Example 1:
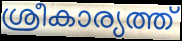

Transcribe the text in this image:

ശ്രീകാര്യത്ത്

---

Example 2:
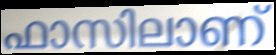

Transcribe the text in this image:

ഫാസിലാണ്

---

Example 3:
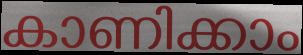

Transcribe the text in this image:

കാണിക്കാം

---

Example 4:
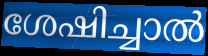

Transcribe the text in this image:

ശേഷിച്ചാൽ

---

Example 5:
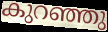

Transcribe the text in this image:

കുറഞ്ഞു